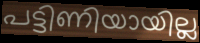
പട്ടിണിയായില്ല